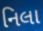
નિલા